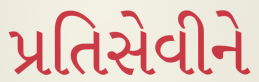
પ્રતિસેવીને